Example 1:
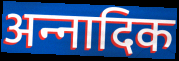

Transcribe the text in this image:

अन्नादिक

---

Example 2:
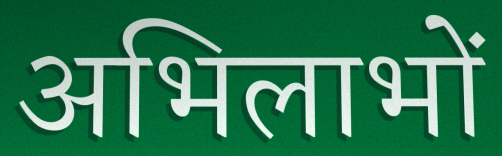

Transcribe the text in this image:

अभिलाभों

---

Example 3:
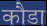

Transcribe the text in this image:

कौडा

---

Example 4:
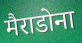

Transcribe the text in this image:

मैराडोना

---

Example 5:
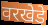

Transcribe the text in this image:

वरखेडे